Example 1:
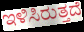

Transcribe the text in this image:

ಇಳಿಸಿರುತ್ತದೆ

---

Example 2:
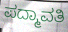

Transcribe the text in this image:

ಪದ್ಮಾವತಿ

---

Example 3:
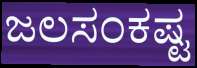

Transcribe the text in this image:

ಜಲಸಂಕಷ್ಟ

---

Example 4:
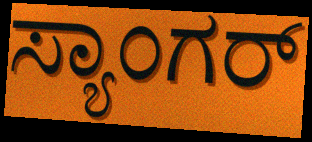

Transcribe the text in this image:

ಸ್ಯಾಂಗರ್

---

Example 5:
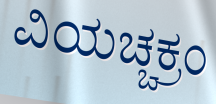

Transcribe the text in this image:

ವಿಯಚ್ಚಕ್ರಂ